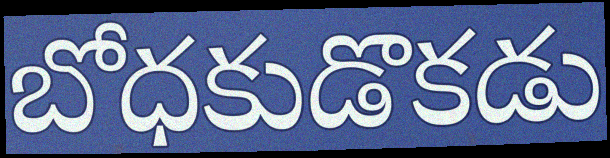
బోధకుడొకడు